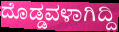
ದೊಡ್ಡವಳಾಗಿದ್ದಿ